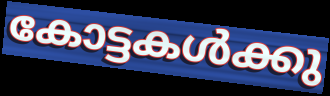
കോട്ടകൾക്കു